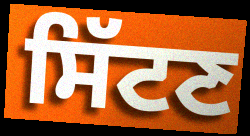
ਸਿੱਟਣ